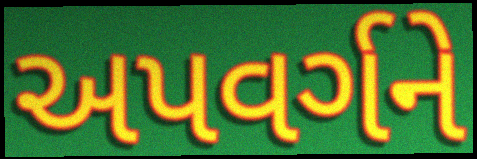
અપવર્ગને